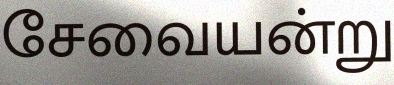
சேவையன்று